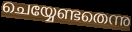
ചെയ്യേണ്ടതെന്നു